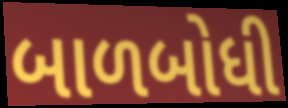
બાળબોધી